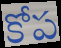
కోప